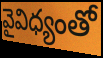
వైవిధ్యంతో